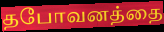
தபோவனத்தை